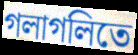
গলাগলিতে